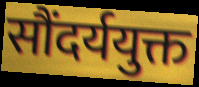
सौंदर्ययुक्त